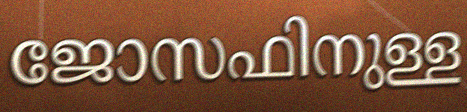
ജോസഫിനുള്ള